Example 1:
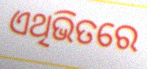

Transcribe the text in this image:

ଏଥିଭିତରେ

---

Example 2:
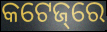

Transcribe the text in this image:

କଟେଜ୍‌ରେ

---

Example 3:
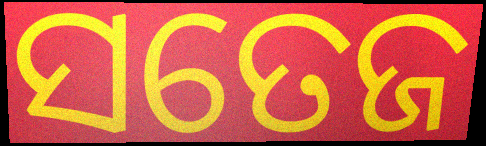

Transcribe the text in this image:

ସତେଜ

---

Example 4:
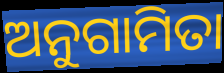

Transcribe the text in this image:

ଅନୁଗାମିତା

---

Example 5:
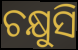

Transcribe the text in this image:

ଚକ୍ଷୁସି